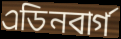
এডিনবাৰ্গ